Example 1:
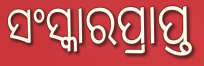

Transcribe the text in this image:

ସଂସ୍କାରପ୍ରାପ୍ତ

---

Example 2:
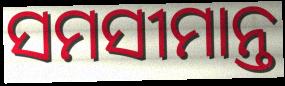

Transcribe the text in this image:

ସମସୀମାନ୍ତ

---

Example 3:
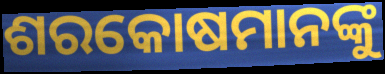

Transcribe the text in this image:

ଶରକୋଷମାନଙ୍କୁ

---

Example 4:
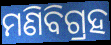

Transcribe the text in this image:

ମଣିବିଗ୍ରହ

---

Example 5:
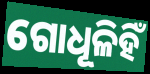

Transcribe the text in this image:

ଗୋଧୂଳିହିଁ